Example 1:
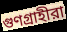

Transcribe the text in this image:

গুণগ্রাহীরা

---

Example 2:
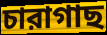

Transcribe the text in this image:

চারাগাছ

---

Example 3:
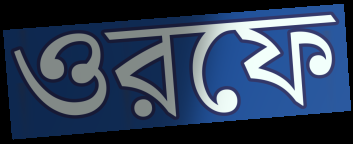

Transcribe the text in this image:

ওরফে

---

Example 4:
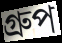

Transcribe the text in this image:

গ্রুপ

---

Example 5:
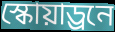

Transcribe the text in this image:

স্কোয়াড্রনে